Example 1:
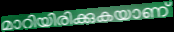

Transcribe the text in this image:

മാറിയിരിക്കുകയാണ്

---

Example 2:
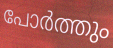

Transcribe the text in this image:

പോർത്തും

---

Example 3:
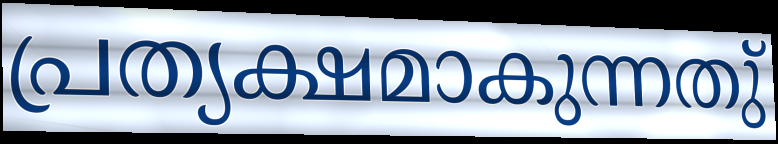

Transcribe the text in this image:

പ്രത്യക്ഷമാകുന്നതു്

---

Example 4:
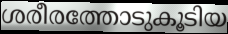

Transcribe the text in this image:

ശരീരത്തോടുകൂടിയ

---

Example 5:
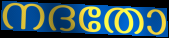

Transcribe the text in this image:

നദതോ